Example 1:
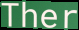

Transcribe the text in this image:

Ther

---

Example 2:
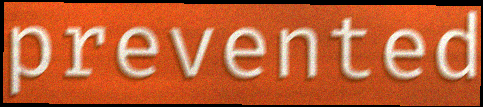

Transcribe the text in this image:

prevented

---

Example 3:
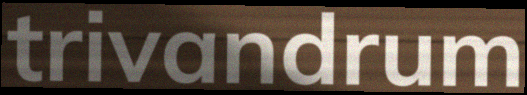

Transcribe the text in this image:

trivandrum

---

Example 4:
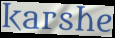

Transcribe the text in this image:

karshe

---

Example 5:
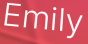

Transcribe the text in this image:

Emily